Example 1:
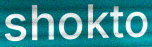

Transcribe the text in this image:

shokto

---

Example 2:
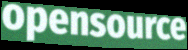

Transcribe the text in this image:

opensource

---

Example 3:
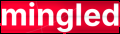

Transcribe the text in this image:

mingled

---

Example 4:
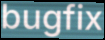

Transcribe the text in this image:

bugfix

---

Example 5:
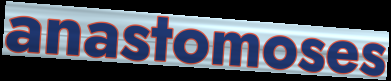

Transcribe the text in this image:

anastomoses